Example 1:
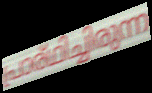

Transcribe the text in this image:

പ്രാര്ഥിച്ചിരുന്ന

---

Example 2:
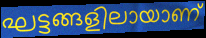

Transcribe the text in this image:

ഘട്ടങ്ങളിലായാണ്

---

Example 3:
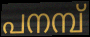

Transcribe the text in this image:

പനമ്പ്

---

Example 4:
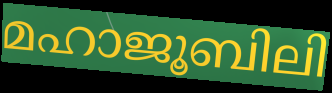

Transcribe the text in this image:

മഹാജൂബിലി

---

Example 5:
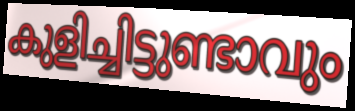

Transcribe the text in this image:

കുളിച്ചിട്ടുണ്ടാവും